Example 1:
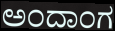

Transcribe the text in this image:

ಅಂದಾಂಗ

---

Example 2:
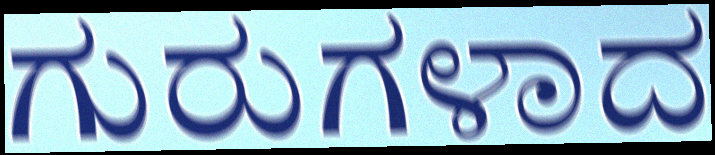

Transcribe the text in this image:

ಗುರುಗಳಾದ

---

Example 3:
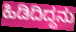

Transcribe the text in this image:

ಹಿಡಿದಿದ್ದನು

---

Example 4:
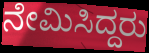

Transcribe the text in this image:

ನೇಮಿಸಿದ್ದರು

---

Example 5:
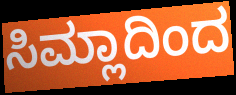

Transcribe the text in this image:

ಸಿಮ್ಲಾದಿಂದ